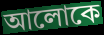
আলোকে